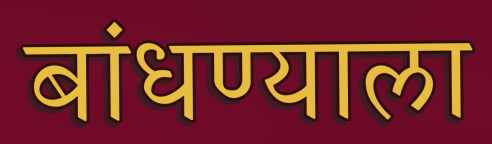
बांधण्याला